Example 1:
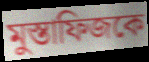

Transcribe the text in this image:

মুস্তাফিজকে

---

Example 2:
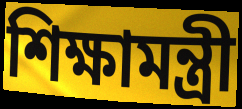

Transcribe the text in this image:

শিক্ষামন্ত্রী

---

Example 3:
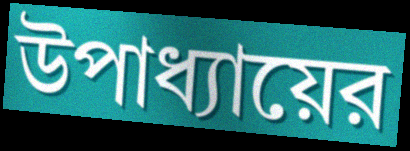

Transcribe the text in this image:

উপাধ্যায়ের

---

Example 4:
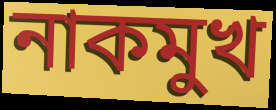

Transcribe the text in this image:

নাকমুখ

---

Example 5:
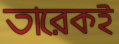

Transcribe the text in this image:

তারেকই